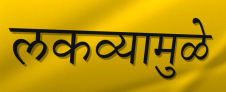
लकव्यामुळे